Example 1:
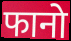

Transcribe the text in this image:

फानो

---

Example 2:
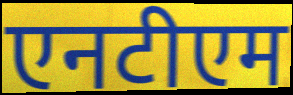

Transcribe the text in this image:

एनटीएम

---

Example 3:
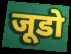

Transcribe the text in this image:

जूडो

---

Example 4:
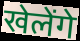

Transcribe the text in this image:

खेलेंगे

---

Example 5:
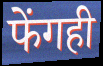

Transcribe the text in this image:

फेंगही